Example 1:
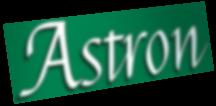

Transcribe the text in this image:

Astron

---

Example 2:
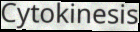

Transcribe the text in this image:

Cytokinesis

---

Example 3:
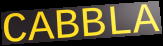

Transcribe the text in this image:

CABBLA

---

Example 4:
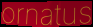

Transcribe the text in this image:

ornatus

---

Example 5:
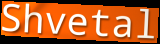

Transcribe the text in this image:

Shvetal